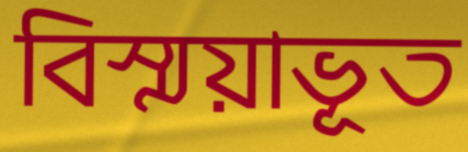
বিস্ময়াভূত